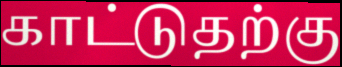
காட்டுதற்கு